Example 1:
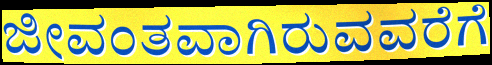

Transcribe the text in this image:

ಜೀವಂತವಾಗಿರುವವರೆಗೆ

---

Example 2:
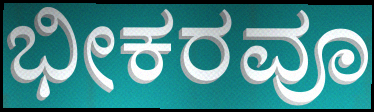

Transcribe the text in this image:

ಭೀಕರವೂ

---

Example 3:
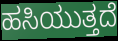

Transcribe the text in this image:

ಹಸಿಯುತ್ತದೆ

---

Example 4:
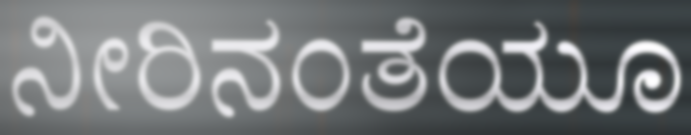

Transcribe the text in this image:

ನೀರಿನಂತೆಯೂ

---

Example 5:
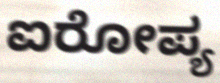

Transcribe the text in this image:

ಐರೋಪ್ಯ